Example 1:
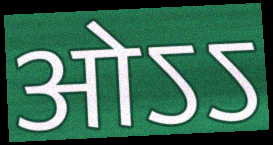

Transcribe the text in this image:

ओऽऽ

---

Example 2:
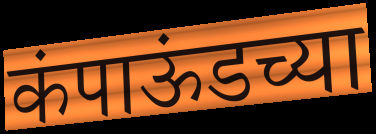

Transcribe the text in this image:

कंपाऊंडच्या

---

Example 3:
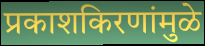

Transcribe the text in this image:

प्रकाशकिरणांमुळे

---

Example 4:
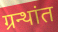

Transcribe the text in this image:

ग्रन्थांत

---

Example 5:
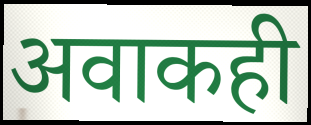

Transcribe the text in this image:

अवाकही